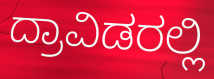
ದ್ರಾವಿಡರಲ್ಲಿ